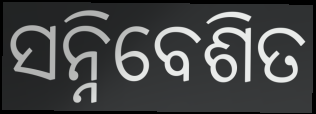
ସନ୍ନିବେଶିତ